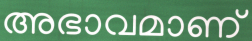
അഭാവമാണ്